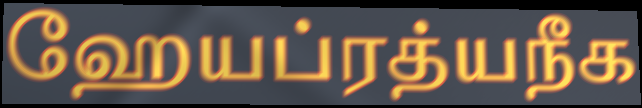
ஹேயப்ரத்யநீக